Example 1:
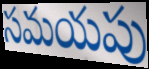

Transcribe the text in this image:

సమయపు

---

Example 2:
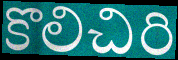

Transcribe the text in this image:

కొలిచిరి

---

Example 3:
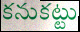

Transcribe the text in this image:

కనుకట్టు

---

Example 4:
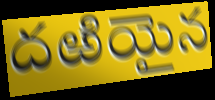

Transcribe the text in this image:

దఱియైన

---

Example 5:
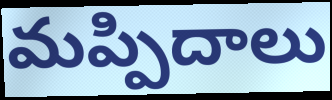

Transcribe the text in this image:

మప్పిదాలు